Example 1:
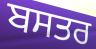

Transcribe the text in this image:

ਬਸਤਰ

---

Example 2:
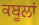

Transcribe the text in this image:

ਕਬੂਲਾਂ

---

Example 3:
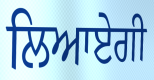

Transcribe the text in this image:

ਲਿਆਏਗੀ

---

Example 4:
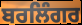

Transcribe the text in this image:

ਬਰਲਿੰਗਰ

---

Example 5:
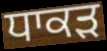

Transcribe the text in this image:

ਧਾਕੜ